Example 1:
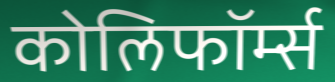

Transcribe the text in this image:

कोलिफॉर्म्स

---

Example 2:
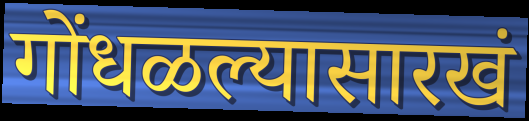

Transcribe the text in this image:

गोंधळल्यासारखं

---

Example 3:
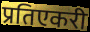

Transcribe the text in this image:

प्रतिएकरी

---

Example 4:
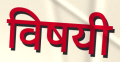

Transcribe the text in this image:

विषयी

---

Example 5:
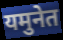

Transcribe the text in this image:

यमुनेत